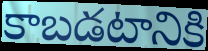
కాబడటానికి